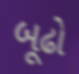
બૂઢો